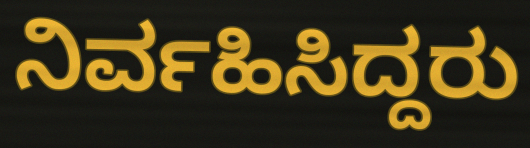
ನಿರ್ವಹಿಸಿದ್ದರು